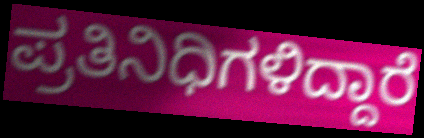
ಪ್ರತಿನಿಧಿಗಳಿದ್ದಾರೆ